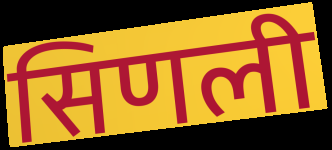
सिणली